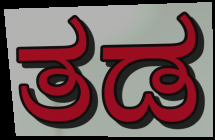
ತಡ